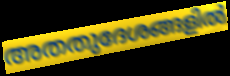
അതതുദേശങ്ങളിൽ